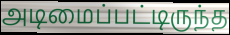
அடிமைப்பட்டிருந்த